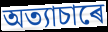
অত্যাচাৰে